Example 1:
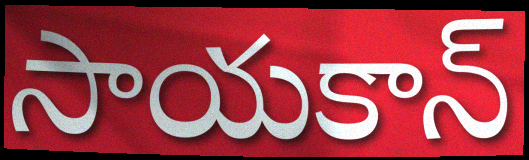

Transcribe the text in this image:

సాయకాన్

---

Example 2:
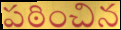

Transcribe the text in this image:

పఠించిన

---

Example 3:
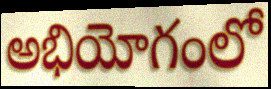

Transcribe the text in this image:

అభియోగంలో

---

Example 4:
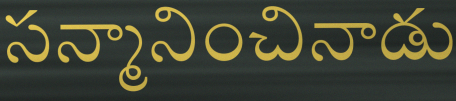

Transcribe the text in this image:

సన్మానించినాడు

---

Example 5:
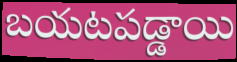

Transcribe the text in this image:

బయటపడ్డాయి